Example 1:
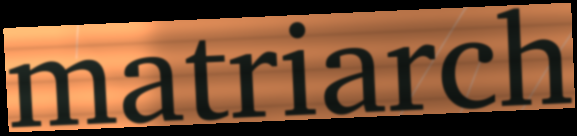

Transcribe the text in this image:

matriarch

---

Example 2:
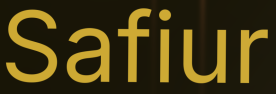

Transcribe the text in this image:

Safiur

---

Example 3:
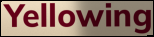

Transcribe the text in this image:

Yellowing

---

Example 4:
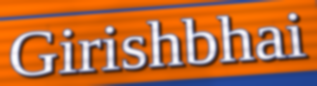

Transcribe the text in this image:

Girishbhai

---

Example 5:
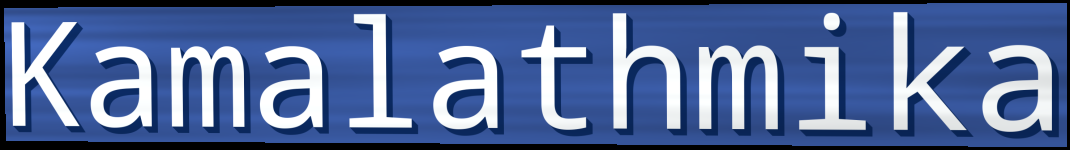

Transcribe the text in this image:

Kamalathmika